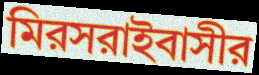
মিরসরাইবাসীর